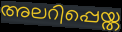
അലറിപ്പെയ്ത